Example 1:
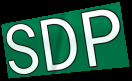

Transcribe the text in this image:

SDP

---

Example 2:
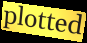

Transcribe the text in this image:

plotted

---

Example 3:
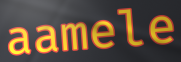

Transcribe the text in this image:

aamele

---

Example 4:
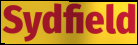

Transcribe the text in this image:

Sydfield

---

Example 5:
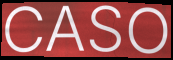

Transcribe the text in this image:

CASO